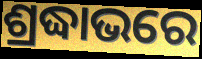
ଶ୍ରଦ୍ଧାଭରେ